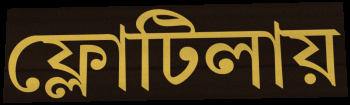
ফ্লোটিলায়